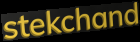
stekchand